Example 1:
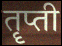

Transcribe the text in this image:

तॄप्ती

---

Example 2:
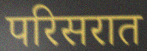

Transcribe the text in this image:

परिसरात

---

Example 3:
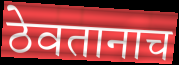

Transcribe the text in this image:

ठेवतानाच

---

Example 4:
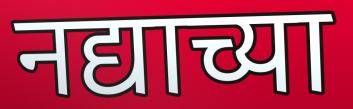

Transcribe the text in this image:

नद्याच्या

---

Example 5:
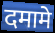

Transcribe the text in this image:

दमामे